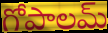
గోపాలమ్